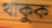
থাকুক